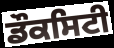
ਡੌਕਸਿਟੀ